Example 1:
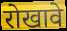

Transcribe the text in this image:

रोखावे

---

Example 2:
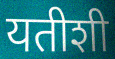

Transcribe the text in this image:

यतीशी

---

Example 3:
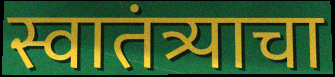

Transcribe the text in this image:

स्‍वातंत्र्याचा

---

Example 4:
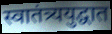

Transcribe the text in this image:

स्वातंत्र्ययुद्धात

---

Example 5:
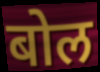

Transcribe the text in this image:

बोल